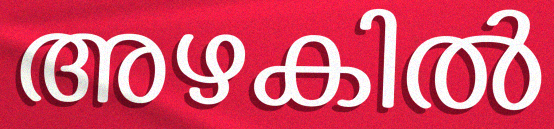
അഴകിൽ